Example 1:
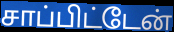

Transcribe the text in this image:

சாப்பிட்டேன்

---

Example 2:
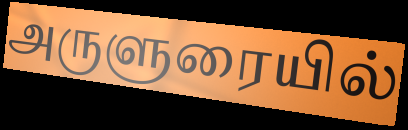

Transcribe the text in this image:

அருளுரையில்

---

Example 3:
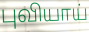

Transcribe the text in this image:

புவியாய்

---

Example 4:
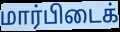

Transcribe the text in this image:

மார்பிடைக்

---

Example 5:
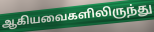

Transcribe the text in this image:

ஆகியவைகளிலிருந்து